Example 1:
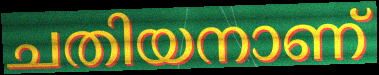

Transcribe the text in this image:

ചതിയനാണ്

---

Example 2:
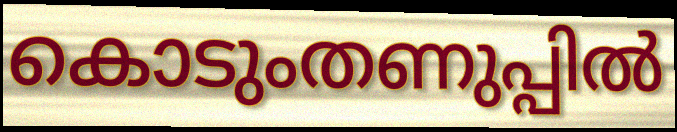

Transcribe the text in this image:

കൊടുംതണുപ്പിൽ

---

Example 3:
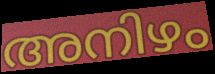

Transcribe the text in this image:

അനിഴം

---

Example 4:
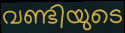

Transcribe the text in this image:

വണ്ടിയുടെ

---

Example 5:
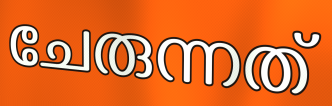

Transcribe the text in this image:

ചേരുന്നത്